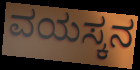
ವಯಸ್ಕನ